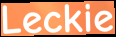
Leckie